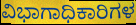
ವಿಭಾಗಾಧಿಕಾರಿಗಳ